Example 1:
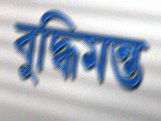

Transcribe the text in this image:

বুদ্ধিমন্ত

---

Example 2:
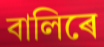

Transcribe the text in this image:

বালিৰে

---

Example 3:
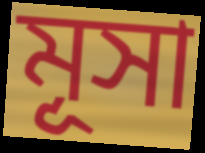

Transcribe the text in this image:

মূসা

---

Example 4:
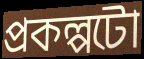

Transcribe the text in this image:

প্ৰকল্পটো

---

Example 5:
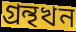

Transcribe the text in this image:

গ্ৰন্থখন